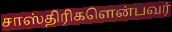
சாஸ்திரிகளென்பவர்